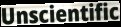
Unscientific